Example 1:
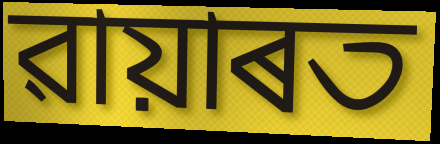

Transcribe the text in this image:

ৱায়াৰত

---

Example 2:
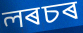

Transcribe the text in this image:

লৰচৰ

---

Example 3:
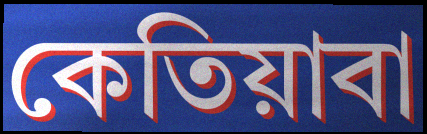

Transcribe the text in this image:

কেতিয়াবা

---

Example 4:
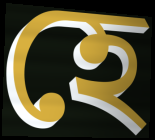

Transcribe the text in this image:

হে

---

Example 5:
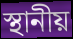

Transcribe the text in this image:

স্থানীয়